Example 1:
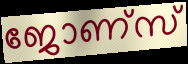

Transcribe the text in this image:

ജോണ്സ്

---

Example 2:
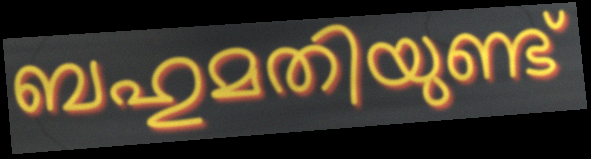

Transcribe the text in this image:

ബഹുമതിയുണ്ട്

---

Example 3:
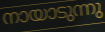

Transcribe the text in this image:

നായാടുന്നു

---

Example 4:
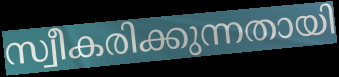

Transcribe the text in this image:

സ്വീകരിക്കുന്നതായി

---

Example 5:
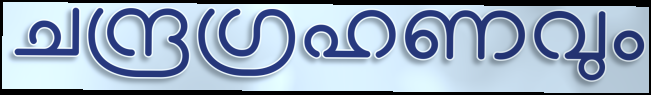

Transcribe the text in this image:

ചന്ദ്രഗ്രഹണവും